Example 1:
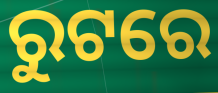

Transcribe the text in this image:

ରୁଟରେ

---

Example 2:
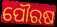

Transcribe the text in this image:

ପୌରଷ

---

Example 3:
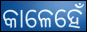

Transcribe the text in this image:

କାଳେହେଁ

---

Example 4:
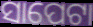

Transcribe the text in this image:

ସାପେଟା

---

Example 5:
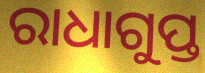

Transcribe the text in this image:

ରାଧାଗୁପ୍ତ